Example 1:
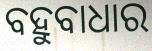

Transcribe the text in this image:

ବହୁବାଧାର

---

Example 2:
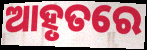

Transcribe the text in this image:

ଆହୃତରେ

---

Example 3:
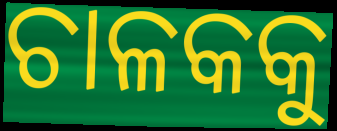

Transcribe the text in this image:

ଚାଳକକୁ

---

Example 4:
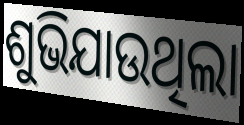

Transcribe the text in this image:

ଶୁଭିଯାଉଥିଲା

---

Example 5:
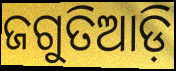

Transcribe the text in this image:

ଜଗୁତିଆଡ଼ି